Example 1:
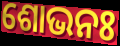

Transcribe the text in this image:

ଶୋଭନଃ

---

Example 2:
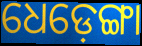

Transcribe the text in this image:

ଧେଡ଼େଙ୍ଗା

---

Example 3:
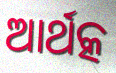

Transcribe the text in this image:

ଆର୍ଥତ୍କ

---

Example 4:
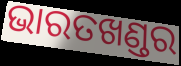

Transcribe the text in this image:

ଭାରତଖଣ୍ଡର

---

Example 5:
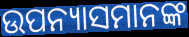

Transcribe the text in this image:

ଉପନ୍ୟାସମାନଙ୍କ